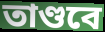
তাণ্ডবে